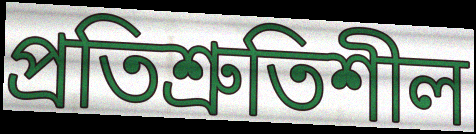
প্রতিশ্রুতিশীল